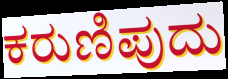
ಕರುಣಿಪುದು